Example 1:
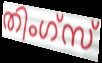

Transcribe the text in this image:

തിംഗ്സ്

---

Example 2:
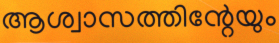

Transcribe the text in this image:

ആശ്വാസത്തിന്റേയും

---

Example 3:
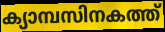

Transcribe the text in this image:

ക്യാമ്പസിനകത്ത്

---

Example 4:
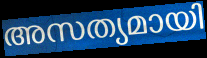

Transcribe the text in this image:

അസത്യമായി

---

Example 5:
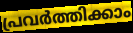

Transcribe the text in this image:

പ്രവർത്തിക്കാം